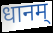
धानम्